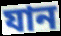
যান